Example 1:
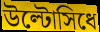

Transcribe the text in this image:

উল্টোসিধে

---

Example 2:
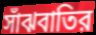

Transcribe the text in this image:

সাঁঝবাতির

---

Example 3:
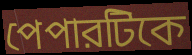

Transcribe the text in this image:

পেপারটিকে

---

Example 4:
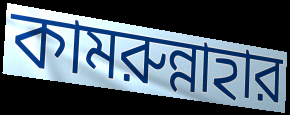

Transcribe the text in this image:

কামরুন্নাহার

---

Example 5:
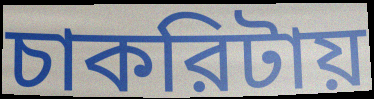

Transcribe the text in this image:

চাকরিটায়